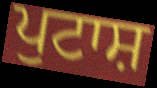
ਪੁਟਾਸ਼